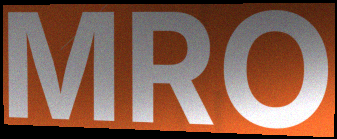
MRO